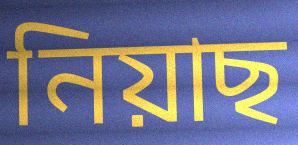
নিয়াছ